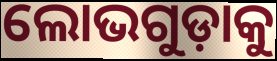
ଲୋଭଗୁଡ଼ାକୁ